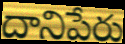
దానిపేరు